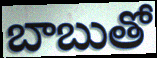
బాబుతో